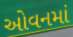
ઓવનમાં